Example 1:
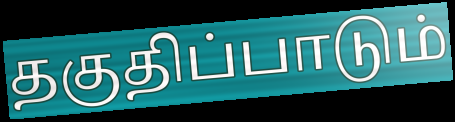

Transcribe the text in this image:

தகுதிப்பாடும்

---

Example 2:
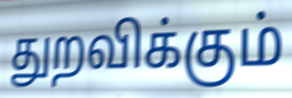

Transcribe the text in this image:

துறவிக்கும்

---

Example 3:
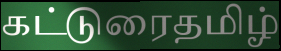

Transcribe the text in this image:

கட்டுரைதமிழ்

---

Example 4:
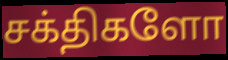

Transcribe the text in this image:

சக்திகளோ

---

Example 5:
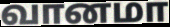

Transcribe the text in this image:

வானமா